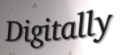
Digitally